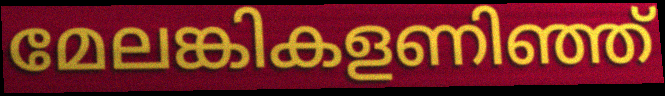
മേലങ്കികളണിഞ്ഞ്